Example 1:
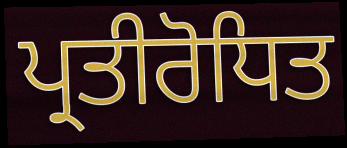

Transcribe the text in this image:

ਪ੍ਰਤੀਰੋਧਿਤ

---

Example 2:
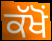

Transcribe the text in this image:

ਕੱਖੋਂ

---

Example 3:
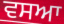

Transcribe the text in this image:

ਵਸਆ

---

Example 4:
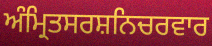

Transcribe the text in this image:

ਅੰਮ੍ਰਿਤਸਰਸ਼ਨਿਚਰਵਾਰ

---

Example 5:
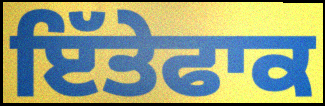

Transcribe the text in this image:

ਇੱਤੇਫਾਕ